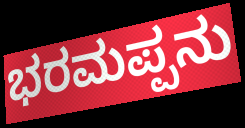
ಭರಮಪ್ಪನು